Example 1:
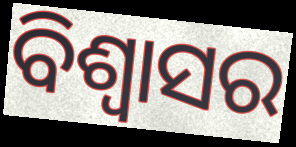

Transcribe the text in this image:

ବିଶ୍ୱାସର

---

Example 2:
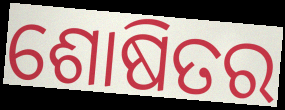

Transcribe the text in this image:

ଶୋଷିତର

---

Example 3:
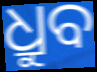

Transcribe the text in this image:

ଧ୍ରୁବ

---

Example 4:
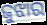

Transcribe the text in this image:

ଜୁଝାର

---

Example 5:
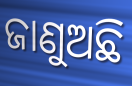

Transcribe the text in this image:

ଜାଣୁଅଛି